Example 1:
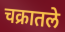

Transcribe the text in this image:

चक्रातले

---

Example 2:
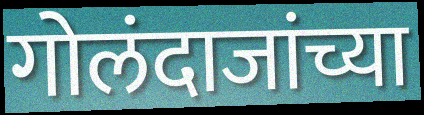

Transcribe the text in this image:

गोलंदाजांच्या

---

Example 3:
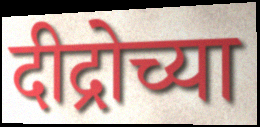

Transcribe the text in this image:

दीद्रोच्या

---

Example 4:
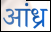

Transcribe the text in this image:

आंध्र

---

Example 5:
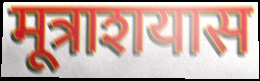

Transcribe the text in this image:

मूत्राशयास